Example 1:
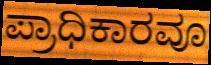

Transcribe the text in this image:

ಪ್ರಾಧಿಕಾರವೂ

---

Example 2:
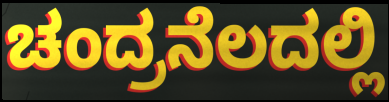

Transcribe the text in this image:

ಚಂದ್ರನೆಲದಲ್ಲಿ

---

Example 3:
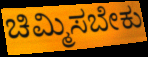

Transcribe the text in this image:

ಚಿಮ್ಮಿಸಬೇಕು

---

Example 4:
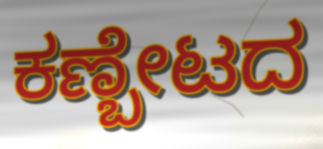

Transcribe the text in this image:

ಕಣ್ಬೇಟದ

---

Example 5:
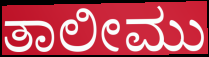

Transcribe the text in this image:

ತಾಲೀಮು